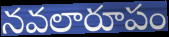
నవలారూపం